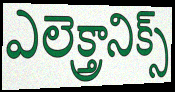
ఎలెక్త్రానిక్స్